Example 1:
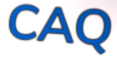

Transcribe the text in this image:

CAQ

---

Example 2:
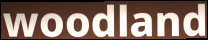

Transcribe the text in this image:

woodland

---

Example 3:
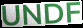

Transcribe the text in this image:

UNDF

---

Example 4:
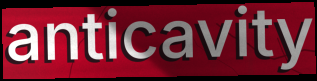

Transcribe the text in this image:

anticavity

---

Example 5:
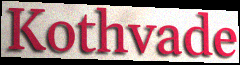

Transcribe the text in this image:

Kothvade